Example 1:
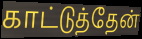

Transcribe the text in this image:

காட்டுத்தேன்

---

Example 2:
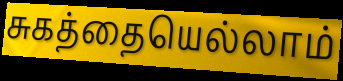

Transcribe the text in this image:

சுகத்தையெல்லாம்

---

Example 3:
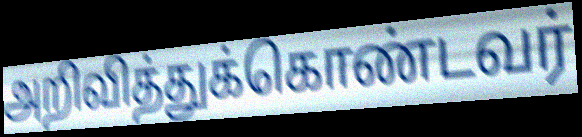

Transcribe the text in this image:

அறிவித்துக்கொண்டவர்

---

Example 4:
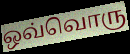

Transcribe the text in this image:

ஒவ்வொரு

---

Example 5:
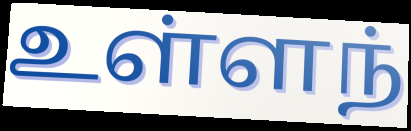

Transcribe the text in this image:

உள்ளந்